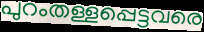
പുറംതള്ളപ്പെട്ടവരെ